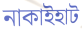
নাকাইহাট